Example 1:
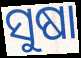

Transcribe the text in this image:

ସୁଷା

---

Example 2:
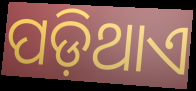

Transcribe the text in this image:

ପଡ଼ିଥାଏ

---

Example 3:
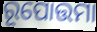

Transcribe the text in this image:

ରୂପୋତ୍ତମା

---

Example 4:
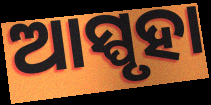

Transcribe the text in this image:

ଆସ୍ପୃହା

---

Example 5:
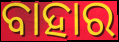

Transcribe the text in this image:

ବାହାର